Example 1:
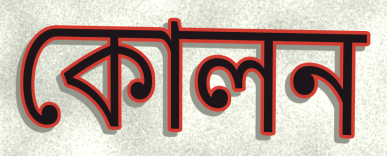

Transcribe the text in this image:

কোলন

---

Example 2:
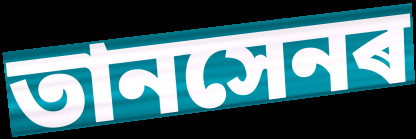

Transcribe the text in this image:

তানসেনৰ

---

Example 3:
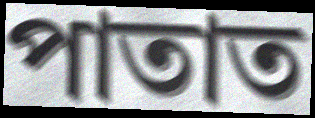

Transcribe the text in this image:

পাতাত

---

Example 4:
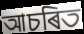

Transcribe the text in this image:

আচৰিত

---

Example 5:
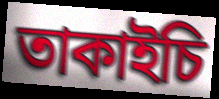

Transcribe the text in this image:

তাকাইচি